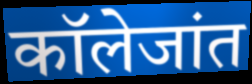
कॉलेजांत